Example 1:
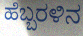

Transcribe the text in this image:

ಹೆಬ್ಬರಳಿನ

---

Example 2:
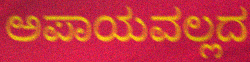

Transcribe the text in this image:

ಅಪಾಯವಲ್ಲದ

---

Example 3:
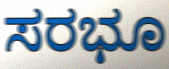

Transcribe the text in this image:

ಸರಭೂ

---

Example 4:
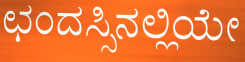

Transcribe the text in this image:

ಛಂದಸ್ಸಿನಲ್ಲಿಯೇ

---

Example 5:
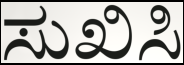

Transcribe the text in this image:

ಸುಖಿಸಿ